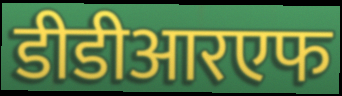
डीडीआरएफ